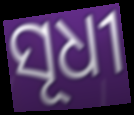
ସୂଧୀ